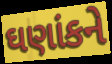
ઘણાંકને